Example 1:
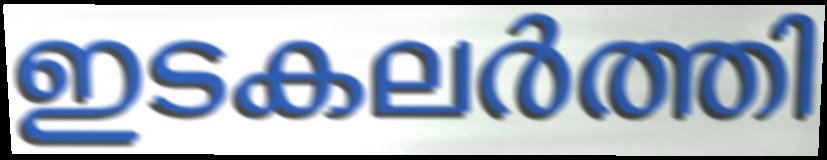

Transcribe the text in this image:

ഇടകലർത്തി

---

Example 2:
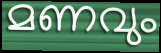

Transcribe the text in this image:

മണവും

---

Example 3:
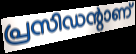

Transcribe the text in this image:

പ്രസിഡന്റാണ്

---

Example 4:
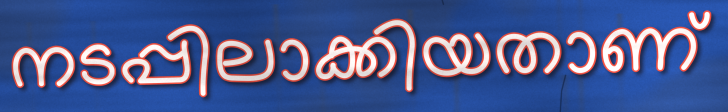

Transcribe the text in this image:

നടപ്പിലാക്കിയതാണ്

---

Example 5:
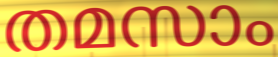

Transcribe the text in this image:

തമസാം